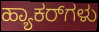
ಹ್ಯಾಕರ್‌ಗಳು